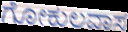
ಗೋಕುಲವಾಸ